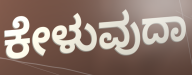
ಕೇಳುವುದಾ